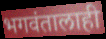
भगवंतालाही